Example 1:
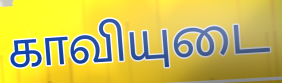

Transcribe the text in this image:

காவியுடை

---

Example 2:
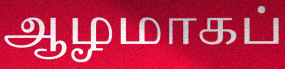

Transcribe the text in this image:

ஆழமாகப்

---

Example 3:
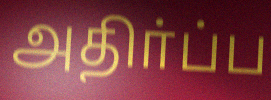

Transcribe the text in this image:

அதிர்ப்ப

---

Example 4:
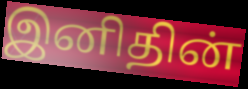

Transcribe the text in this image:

இனிதின்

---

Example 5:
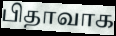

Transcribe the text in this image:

பிதாவாக